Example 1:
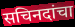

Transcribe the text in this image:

सचिनदांचा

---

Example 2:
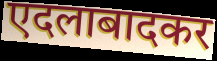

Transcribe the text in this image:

एदलाबादकर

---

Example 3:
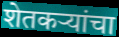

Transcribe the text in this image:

शेतकऱ्यांचा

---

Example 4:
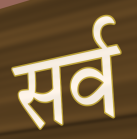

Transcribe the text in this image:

सर्व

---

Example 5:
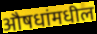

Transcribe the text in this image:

औषधांमधील